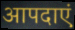
आपदाएं